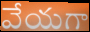
వేయగా